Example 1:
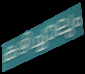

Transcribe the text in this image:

കഴിച്ചാലും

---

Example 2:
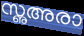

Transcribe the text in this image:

സൢഅരാ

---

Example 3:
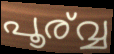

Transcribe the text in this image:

പൂര്വ്വ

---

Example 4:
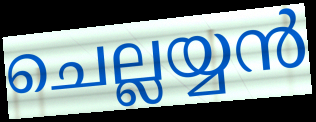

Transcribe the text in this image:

ചെല്ലയ്യൻ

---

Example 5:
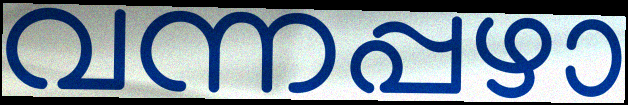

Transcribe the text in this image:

വന്നപ്പഴാ